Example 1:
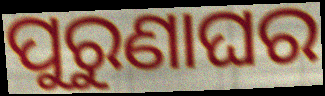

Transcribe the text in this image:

ପୁରୁଣାଘର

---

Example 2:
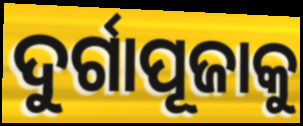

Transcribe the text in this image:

ଦୁର୍ଗାପୂଜାକୁ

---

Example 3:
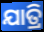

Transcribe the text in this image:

ଯାତ୍ରି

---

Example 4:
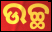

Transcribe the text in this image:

ଉଚ୍ଛ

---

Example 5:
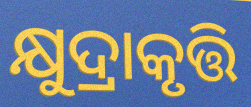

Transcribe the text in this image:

କ୍ଷୁଦ୍ରାକୃତ୍ତି